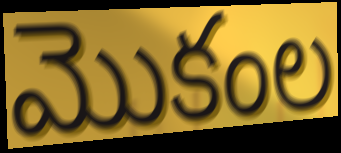
మొకంల